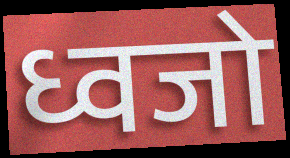
ध्वजो